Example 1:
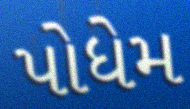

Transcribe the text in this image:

પોધેમ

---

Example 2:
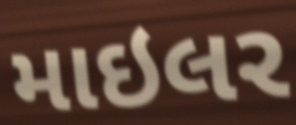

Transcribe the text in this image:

માઇલર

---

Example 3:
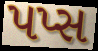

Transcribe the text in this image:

પપ્સ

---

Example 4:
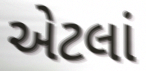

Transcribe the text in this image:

એટલાં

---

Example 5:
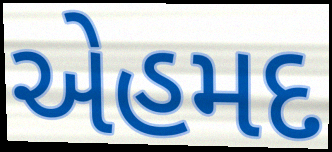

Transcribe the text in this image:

એહમદ